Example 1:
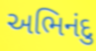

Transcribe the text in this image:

અભિનંદુ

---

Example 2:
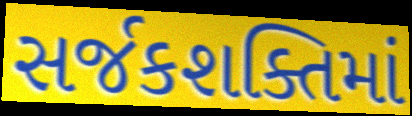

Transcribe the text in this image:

સર્જકશક્તિમાં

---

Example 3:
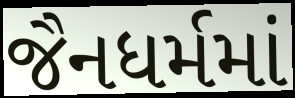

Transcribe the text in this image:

જૈનધર્મમાં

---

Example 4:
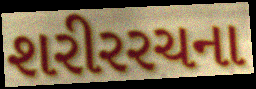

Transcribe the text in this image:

શરીરરચના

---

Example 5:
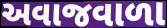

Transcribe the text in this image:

અવાજવાળા